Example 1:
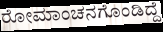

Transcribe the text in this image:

ರೋಮಾಂಚನಗೊಂಡಿದ್ದೆ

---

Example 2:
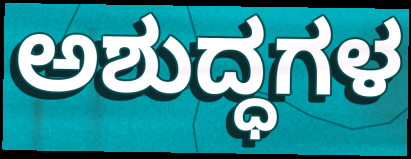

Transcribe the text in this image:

ಅಶುದ್ಧಗಳ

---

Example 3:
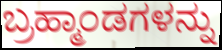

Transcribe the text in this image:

ಬ್ರಹ್ಮಾಂಡಗಳನ್ನು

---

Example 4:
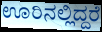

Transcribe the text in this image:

ಊರಿನಲ್ಲಿದ್ದರೆ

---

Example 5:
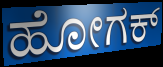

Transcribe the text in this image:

ಹೋಗಕ್